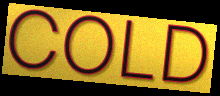
COLD